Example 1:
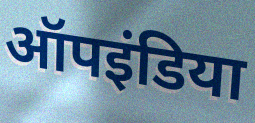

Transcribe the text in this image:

ऑपइंडिया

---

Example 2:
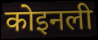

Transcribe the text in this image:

कोइनली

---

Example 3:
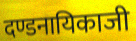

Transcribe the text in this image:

दण्डनायिकाजी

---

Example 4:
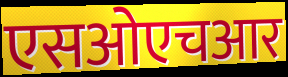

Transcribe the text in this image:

एसओएचआर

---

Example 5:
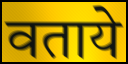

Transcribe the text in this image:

वताये